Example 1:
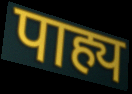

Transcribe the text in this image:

पाह्य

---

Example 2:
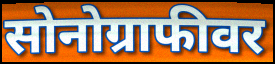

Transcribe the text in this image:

सोनोग्राफीवर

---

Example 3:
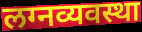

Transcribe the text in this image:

लग्नव्यवस्था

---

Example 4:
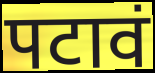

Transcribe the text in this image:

पटावं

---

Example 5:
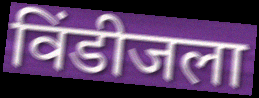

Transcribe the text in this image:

विंडीजला